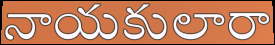
నాయకులారా